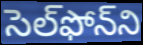
సెల్‌ఫోన్‌ని